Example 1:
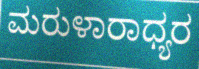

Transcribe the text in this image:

ಮರುಳಾರಾಧ್ಯರ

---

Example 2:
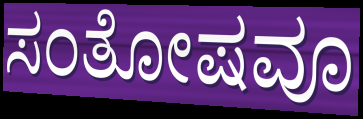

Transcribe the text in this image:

ಸಂತೋಷವೂ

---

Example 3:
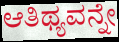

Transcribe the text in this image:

ಆತಿಥ್ಯವನ್ನೇ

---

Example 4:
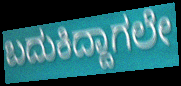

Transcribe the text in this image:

ಬದುಕಿದ್ದಾಗಲೇ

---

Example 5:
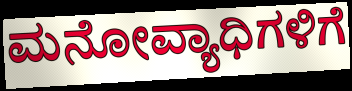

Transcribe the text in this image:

ಮನೋವ್ಯಾಧಿಗಳಿಗೆ